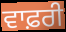
ਵਾਫ਼ਰੀ